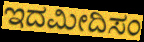
ಇದಮೀದಿಸಂ